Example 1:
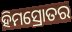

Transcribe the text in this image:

ହିମସ୍ରୋତର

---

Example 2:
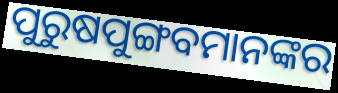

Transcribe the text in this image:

ପୁରୁଷପୁଙ୍ଗବମାନଙ୍କର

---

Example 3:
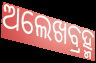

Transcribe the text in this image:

ଅଲେଖବ୍ରହ୍ମ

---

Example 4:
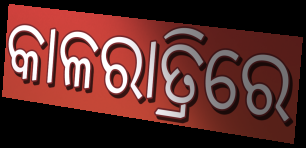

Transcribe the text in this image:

କାଳରାତ୍ରିରେ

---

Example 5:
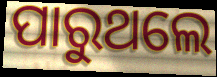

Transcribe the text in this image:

ପାରୁଥଲେ